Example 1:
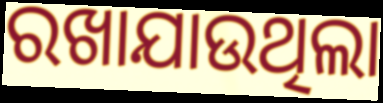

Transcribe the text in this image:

ରଖାଯାଉଥିଲା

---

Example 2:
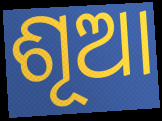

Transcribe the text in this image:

ଶୂଆ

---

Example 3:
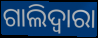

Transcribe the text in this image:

ଗାଲିଦ୍ଵାରା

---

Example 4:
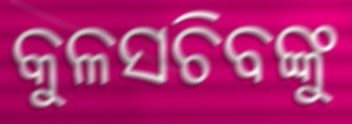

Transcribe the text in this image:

କୁଳସଚିବଙ୍କୁ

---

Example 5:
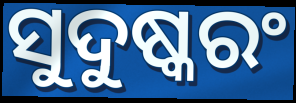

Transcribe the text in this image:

ସୁଦୁଷ୍କରଂ